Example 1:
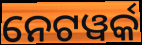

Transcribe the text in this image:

ନେଟୱର୍କ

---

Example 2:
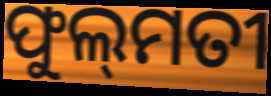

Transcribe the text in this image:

ଫୁଲ୍‍ମତୀ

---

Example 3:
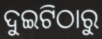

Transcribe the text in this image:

ଦୁଇଟିଠାରୁ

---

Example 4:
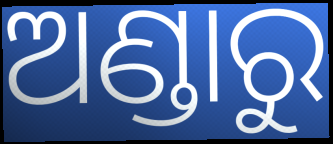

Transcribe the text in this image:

ଅଣ୍ଡାରୁ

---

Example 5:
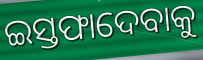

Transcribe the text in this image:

ଇସ୍ତଫାଦେବାକୁ